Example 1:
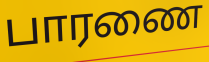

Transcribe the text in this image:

பாரணை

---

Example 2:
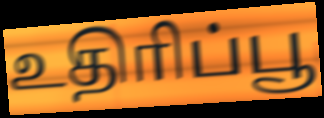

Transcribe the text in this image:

உதிரிப்பூ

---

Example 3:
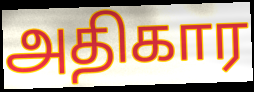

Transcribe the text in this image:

அதிகார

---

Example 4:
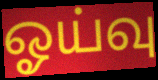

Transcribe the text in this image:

ஓய்வு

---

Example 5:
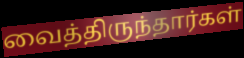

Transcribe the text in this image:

வைத்திருந்தார்கள்